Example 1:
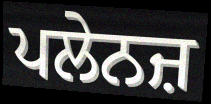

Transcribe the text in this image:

ਪਲੇਨਜ਼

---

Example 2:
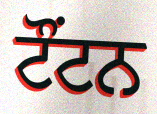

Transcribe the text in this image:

ਟੌਂਟਨ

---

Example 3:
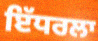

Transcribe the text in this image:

ਇੱਧਰਲਾ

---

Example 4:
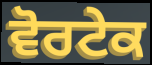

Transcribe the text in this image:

ਵੋਰਟੇਕ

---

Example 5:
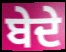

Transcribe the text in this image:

ਬੇਦੇ